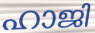
ഹാജി